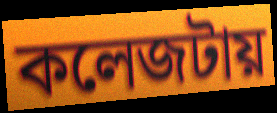
কলেজটায়